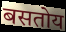
बसतोय